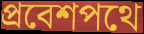
প্রবেশপথে